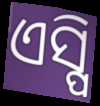
ଏସ୍ପି